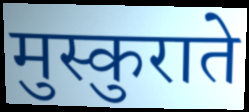
मुस्कुराते